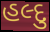
હલ્દુ